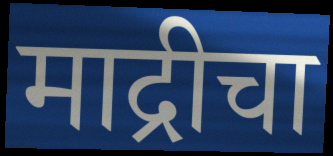
माद्रीचा